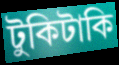
টুকিটাকি